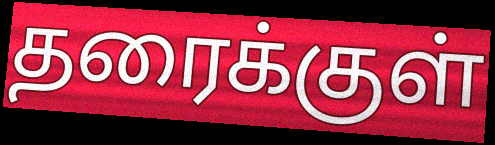
தரைக்குள்